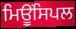
ਮਿਊਂਸਿਪਲ